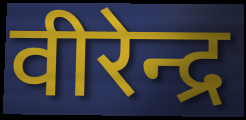
वीरेन्द्र